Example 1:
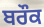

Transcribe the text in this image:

ਬਰੌਕ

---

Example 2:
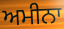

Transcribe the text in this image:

ਅਮੀਨਾ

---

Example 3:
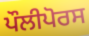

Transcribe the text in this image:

ਪੌਲੀਪੋਰਸ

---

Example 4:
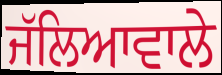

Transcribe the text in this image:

ਜੱਲਿਆਵਾਲੇ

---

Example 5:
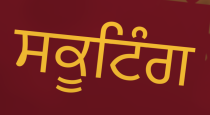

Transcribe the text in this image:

ਸਕੂਟਿੰਗ